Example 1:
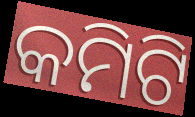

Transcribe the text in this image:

କମିଟି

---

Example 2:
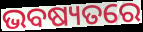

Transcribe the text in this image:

ଭବଷ୍ୟତରେ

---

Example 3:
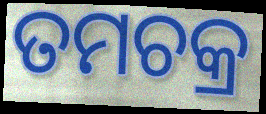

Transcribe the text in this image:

ତମଚକ୍ର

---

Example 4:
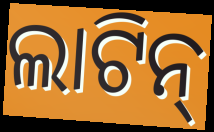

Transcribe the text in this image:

ଲାଟିନ୍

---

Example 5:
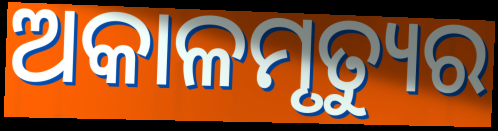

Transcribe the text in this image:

ଅକାଳମୃତ୍ୟୁର